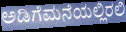
ಅಡಿಗೆಮನೆಯಲ್ಲಿರಲಿ